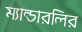
ম্যান্ডারলির